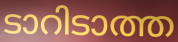
ടാറിടാത്ത